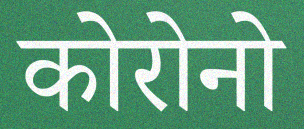
कोरोनो